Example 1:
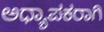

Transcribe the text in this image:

ಅಧ್ಯಾಪಕರಾಗಿ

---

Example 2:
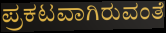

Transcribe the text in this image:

ಪ್ರಕಟವಾಗಿರುವಂತೆ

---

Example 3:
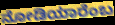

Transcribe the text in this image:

ನೋಡಿಯಾರೆಂಬ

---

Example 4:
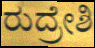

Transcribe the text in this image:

ರುದ್ರೇಶಿ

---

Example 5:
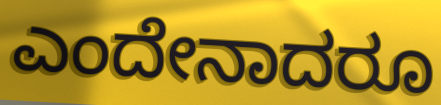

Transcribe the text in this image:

ಎಂದೇನಾದರೂ